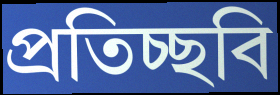
প্রতিচ্ছবি